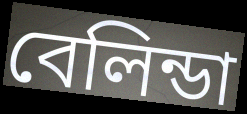
বেলিন্ডা